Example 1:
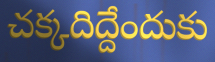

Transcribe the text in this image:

చక్కదిద్దేందుకు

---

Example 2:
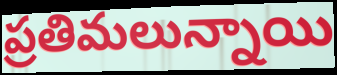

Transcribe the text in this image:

ప్రతిమలున్నాయి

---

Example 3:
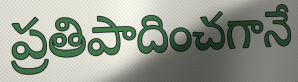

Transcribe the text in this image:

ప్రతిపాదించగానే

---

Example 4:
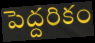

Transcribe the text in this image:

పెద్దరికం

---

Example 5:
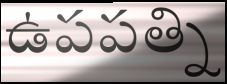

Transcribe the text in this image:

ఉపపత్ని